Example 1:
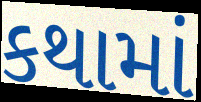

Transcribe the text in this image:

કથામાં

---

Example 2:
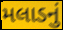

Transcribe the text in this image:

મલાડનું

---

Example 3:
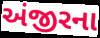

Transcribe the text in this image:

અંજીરના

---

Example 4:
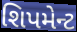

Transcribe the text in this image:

શિપમેન્ટ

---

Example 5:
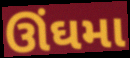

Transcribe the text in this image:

ઊંઘમા